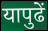
यापुढें